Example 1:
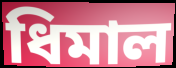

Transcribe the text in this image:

ধিমাল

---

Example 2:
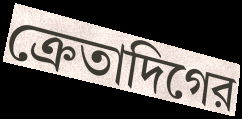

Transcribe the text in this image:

ক্রেতাদিগের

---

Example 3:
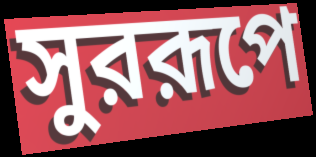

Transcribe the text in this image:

সুররূপে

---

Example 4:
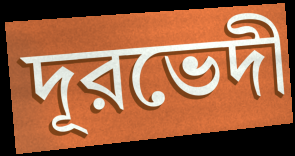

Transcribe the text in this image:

দূরভেদী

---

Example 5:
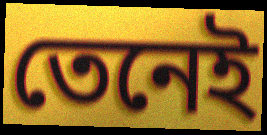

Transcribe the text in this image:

তেনেই